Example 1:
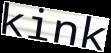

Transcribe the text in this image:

kink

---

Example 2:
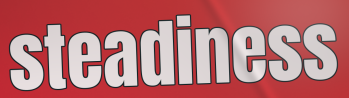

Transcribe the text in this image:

steadiness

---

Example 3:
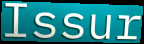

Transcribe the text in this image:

Issur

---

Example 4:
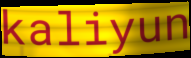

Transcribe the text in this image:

kaliyun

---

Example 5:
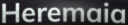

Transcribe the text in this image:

Heremaia